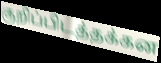
குறிப்பிடத்தக்கன